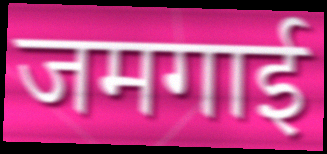
जमगाई